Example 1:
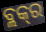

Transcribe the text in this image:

ବ୍ଲକ୍‍ର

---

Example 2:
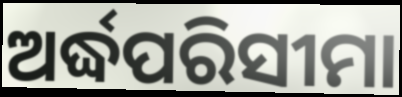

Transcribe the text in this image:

ଅର୍ଦ୍ଧପରିସୀମା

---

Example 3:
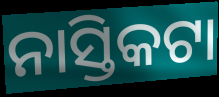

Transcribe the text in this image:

ନାସ୍ତିକଟା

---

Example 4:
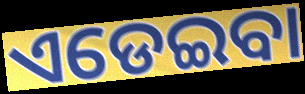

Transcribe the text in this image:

ଏଡେଇବା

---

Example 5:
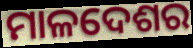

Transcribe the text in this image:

ମାଳଦେଶର